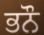
ਭਨੌ